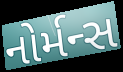
નોર્મન્સ